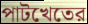
পাটখেতের